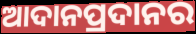
ଆଦାନପ୍ରଦାନର